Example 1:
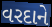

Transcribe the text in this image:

વરદાને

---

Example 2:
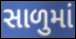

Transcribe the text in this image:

સાળુમાં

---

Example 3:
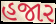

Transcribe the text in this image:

હજાર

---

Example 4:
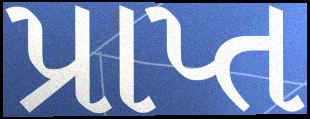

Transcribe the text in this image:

પ્રાપ્‍ત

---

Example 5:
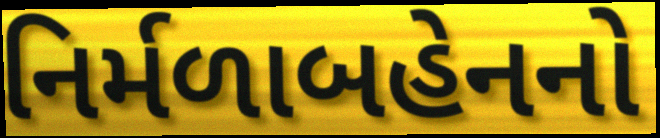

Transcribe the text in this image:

નિર્મળાબહેનનો